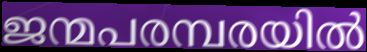
ജന്മപരമ്പരയിൽ